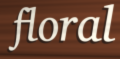
floral